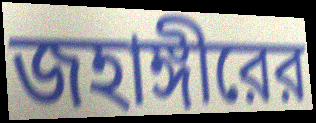
জহাঙ্গীরের